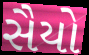
સૈયો